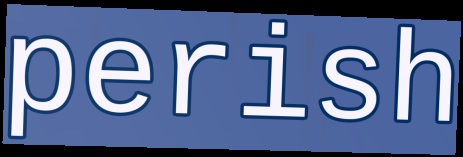
perish